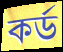
কর্ড